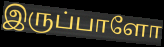
இருப்பாளோ